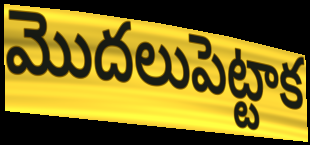
మొదలుపెట్టాక